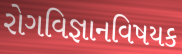
રોગવિજ્ઞાનવિષયક